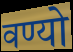
वण्यो